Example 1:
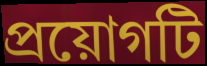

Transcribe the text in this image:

প্রয়োগটি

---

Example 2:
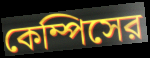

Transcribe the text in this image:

কেম্পিসের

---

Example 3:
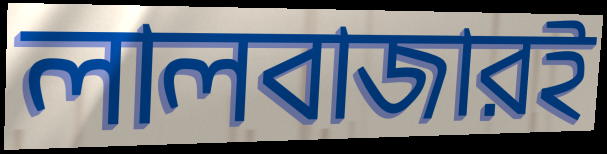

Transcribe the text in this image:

লালবাজারই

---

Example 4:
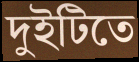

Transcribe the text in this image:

দুইটিতে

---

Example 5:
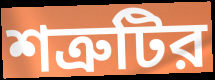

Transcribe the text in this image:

শত্রুটির